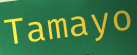
Tamayo